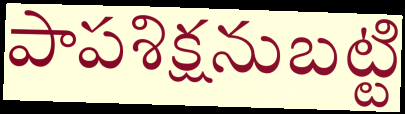
పాపశిక్షనుబట్టి